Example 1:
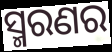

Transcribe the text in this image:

ସ୍ମରଣର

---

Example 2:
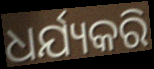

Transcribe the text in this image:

ଧର୍ଯ୍ୟକରି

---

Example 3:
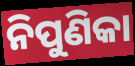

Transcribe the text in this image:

ନିପୁଣିକା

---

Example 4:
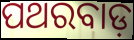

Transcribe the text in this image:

ପଥରବାଡ଼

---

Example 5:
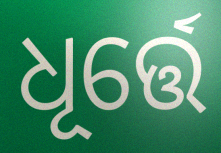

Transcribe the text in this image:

ଧୂର୍ତ୍ତେ